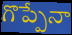
గొప్పేనా